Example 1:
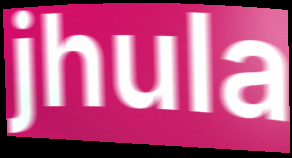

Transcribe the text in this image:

jhula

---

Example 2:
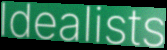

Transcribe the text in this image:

Idealists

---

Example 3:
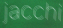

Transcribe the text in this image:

jacchi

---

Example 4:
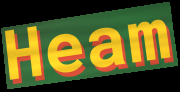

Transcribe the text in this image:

Heam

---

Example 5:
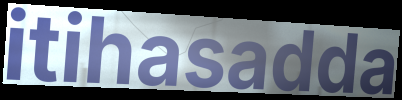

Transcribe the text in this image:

itihasadda